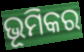
ଭୂମିକର